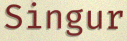
Singur